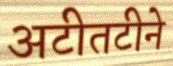
अटीतटीने